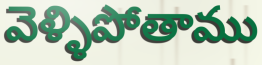
వెళ్ళిపోతాము